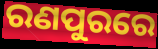
ରଣପୁରରେ